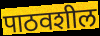
पाठवशील